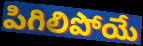
పిగిలిపోయే